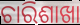
ଚାରିଶାଖା